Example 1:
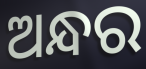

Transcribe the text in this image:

ଅନ୍ଧର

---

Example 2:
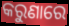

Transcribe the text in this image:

କରୁଣାରେ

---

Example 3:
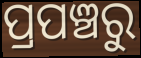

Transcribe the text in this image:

ପ୍ରପଞ୍ଚରୁ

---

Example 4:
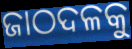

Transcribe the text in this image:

ଜାଠଦଳକୁ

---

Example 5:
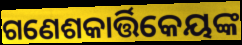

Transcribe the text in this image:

ଗଣେଶକାର୍ତ୍ତିକେୟଙ୍କ